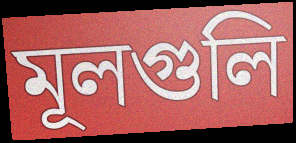
মূলগুলি